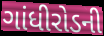
ગાંધીરોડની